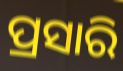
ପ୍ରସାରି